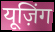
यूज़िंग